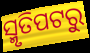
ସ୍ମୃତିପଟରୁ